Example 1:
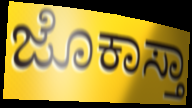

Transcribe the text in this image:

ಜೊಕಾಸ್ತಾ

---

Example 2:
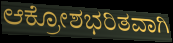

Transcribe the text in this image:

ಆಕ್ರೋಶಭರಿತವಾಗಿ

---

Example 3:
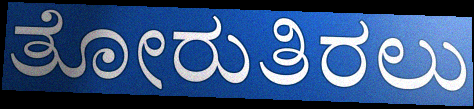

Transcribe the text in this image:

ತೋರುತಿರಲು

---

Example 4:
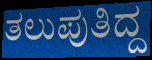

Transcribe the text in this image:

ತಲುಪುತಿದ್ದ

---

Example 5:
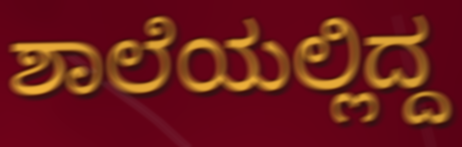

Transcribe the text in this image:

ಶಾಲೆಯಲ್ಲಿದ್ದ